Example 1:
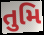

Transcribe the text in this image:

તુમિ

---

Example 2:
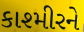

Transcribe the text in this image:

કાશ્મીરને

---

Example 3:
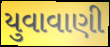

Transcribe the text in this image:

યુવાવાણી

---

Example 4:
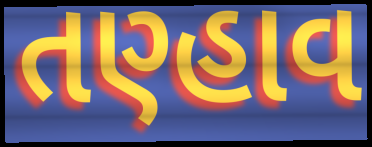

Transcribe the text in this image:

તણ્હાવ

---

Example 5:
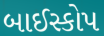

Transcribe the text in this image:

બાઈસ્કોપ